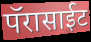
पॅरासाईट